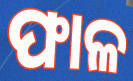
ଫାଳ